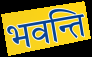
भवन्ति